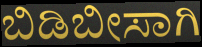
ಬಿಡಿಬೀಸಾಗಿ